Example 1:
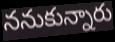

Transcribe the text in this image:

ననుకున్నారు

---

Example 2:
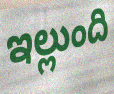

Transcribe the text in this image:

ఇల్లుంది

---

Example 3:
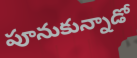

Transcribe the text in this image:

పూనుకున్నాడో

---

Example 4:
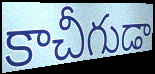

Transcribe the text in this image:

కాచీగుడా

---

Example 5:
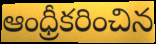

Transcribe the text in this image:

ఆంధ్రీకరించిన